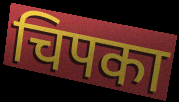
चिपका